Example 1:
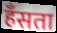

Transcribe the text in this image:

हॅंसता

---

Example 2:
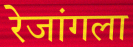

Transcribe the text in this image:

रेजांगला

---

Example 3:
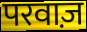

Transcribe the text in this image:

परवाज़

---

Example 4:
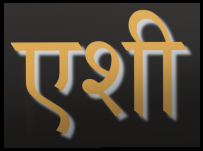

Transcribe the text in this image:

एशी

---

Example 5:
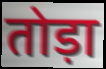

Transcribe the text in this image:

तोड़ा